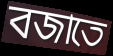
বজাতে